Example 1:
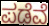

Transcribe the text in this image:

ಪಡೆವೆ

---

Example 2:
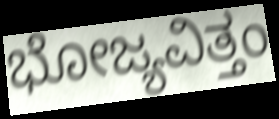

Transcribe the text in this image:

ಭೋಜ್ಯವಿತ್ತಂ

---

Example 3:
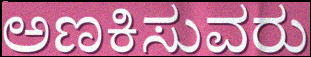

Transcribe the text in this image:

ಅಣಕಿಸುವರು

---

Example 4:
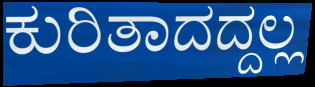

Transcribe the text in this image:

ಕುರಿತಾದದ್ದಲ್ಲ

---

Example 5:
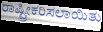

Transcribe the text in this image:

ರಾಷ್ಟ್ರೀಕರಿಸಲಾಯಿತು